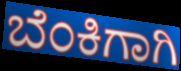
ಬೆಂಕಿಗಾಗಿ